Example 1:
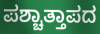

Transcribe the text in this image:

ಪಶ್ಚಾತ್ತಾಪದ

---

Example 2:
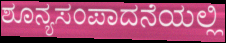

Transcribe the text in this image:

ಶೂನ್ಯಸಂಪಾದನೆಯಲ್ಲಿ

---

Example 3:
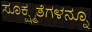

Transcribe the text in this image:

ಸೂಕ್ಷ್ಮತೆಗಳನ್ನೂ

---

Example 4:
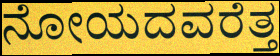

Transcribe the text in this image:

ನೋಯದವರೆತ್ತ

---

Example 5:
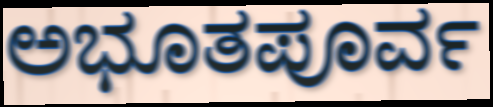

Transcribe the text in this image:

ಅಭೂತಪೂರ್ವ